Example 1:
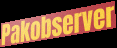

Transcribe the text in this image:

Pakobserver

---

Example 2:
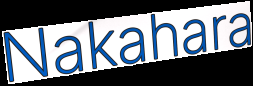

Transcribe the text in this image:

Nakahara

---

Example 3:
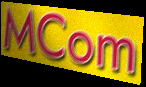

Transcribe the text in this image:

MCom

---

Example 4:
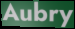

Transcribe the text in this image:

Aubry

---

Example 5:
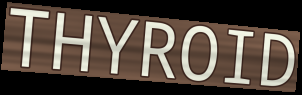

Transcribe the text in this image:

THYROID